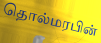
தொல்மரபின்